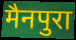
मैनपुरा